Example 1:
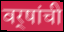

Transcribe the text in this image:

वर्षांची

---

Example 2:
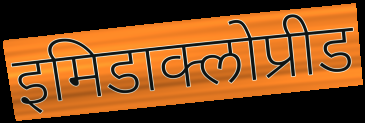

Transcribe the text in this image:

इमिडाक्लोप्रीड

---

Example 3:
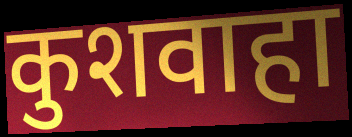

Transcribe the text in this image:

कुशवाहा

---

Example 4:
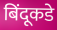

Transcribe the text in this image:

बिंदूकडे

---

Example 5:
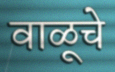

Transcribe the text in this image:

वाळूचे